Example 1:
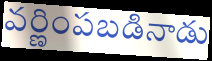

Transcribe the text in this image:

వర్ణింపబడినాడు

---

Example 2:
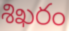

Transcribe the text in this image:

శిఖరం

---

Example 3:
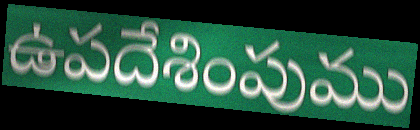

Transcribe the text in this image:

ఉపదేశింపుము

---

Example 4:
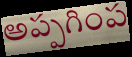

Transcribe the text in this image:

అప్పగింప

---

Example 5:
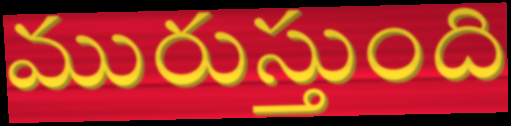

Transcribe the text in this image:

మురుస్తుంది